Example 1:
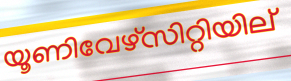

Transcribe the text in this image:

യൂണിവേഴ്സിറ്റിയില്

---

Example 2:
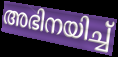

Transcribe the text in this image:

അഭിനയിച്ച്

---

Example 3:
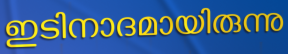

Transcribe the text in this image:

ഇടിനാദമായിരുന്നു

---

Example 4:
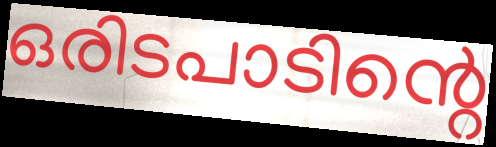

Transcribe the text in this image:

ഒരിടപാടിന്റെ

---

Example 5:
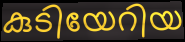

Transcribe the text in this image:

കുടിയേറിയ